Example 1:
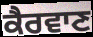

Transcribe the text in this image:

ਕੈਰਵਾਣ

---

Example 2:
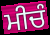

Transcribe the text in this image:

ਮੀਚੰ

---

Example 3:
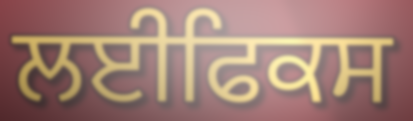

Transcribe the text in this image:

ਲਈਫਿਕਸ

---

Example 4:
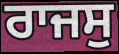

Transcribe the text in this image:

ਰਾਜਸੁ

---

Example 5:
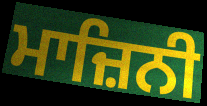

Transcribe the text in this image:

ਮਾਜ਼ਿਨੀ